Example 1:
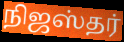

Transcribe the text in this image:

நிஜஸ்தர்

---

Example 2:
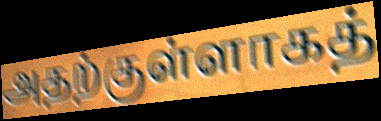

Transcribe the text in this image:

அதற்குள்ளாகத்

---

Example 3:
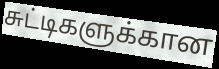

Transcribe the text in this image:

சுட்டிகளுக்கான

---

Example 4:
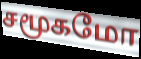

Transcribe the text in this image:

சமூகமோ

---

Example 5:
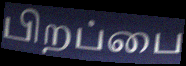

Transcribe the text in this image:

பிறப்பை